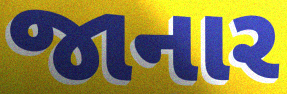
જાનાર